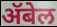
ॲबेल